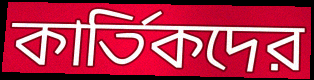
কার্তিকদের